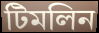
টিমলিন